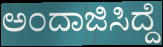
ಅಂದಾಜಿಸಿದ್ದೆ